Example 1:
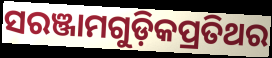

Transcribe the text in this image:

ସରଞ୍ଜାମଗୁଡ଼ିକପ୍ରତିଥର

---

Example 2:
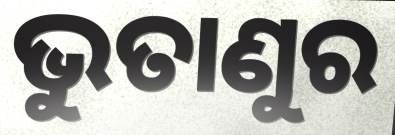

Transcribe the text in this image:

ଭୁତାଣୁର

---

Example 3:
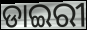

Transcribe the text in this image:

ଡାଇରୀ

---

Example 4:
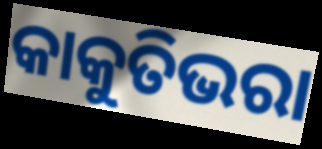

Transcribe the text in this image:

କାକୁତିଭରା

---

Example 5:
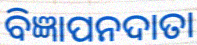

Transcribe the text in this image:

ବିଜ୍ଞାପନଦାତା